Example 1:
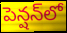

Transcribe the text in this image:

పెన్షన్‌లో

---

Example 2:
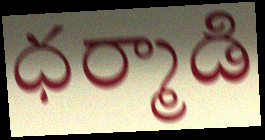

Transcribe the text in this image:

ధర్మాడి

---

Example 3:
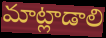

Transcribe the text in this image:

మాట్లాడాలి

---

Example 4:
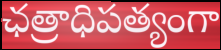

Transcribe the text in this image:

ఛత్రాధిపత్యంగా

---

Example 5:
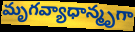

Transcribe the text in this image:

మృగవ్యాధాన్మృగా